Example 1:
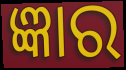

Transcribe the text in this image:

ଜ୍ଞାର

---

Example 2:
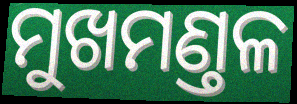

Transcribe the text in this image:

ମୁଖମଣ୍ତଳ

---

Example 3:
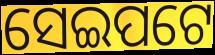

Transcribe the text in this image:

ସେଇପଟେ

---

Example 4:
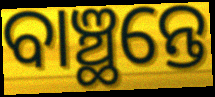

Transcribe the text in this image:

ବାଞ୍ଛନ୍ତେ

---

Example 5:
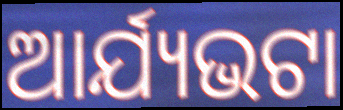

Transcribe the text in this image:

ଆର୍ଯ୍ୟଭଟା